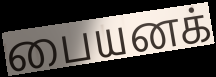
பையனக்